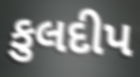
કુલદીપ